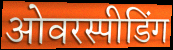
ओवरस्पीडिंग